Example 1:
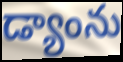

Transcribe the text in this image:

డ్యాంను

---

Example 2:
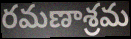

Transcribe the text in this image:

రమణాశ్రమ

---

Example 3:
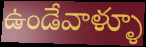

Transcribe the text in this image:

ఉండేవాళ్ళూ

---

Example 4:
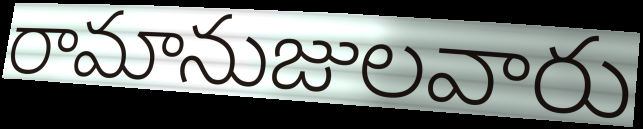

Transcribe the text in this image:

రామానుజులవారు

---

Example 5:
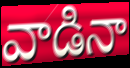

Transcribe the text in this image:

వాడినా